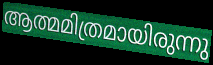
ആത്മമിത്രമായിരുന്നു